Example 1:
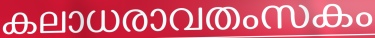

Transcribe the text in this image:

കലാധരാവതംസകം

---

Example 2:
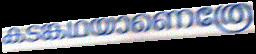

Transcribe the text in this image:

കടങ്കഥയാണെത്രേ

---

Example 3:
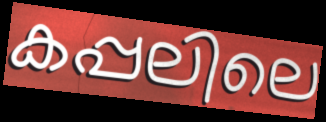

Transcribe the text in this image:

കപ്പലിലെ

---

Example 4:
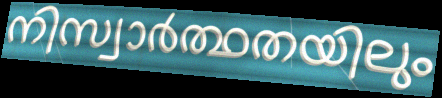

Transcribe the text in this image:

നിസ്വാർത്ഥതയിലും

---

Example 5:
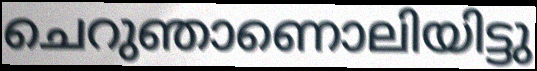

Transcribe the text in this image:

ചെറുഞാണൊലിയിട്ടു